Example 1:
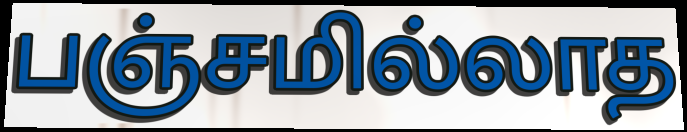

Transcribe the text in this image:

பஞ்சமில்லாத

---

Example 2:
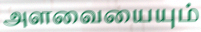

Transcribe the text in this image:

அளவையையும்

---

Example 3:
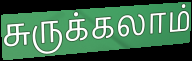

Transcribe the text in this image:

சுருக்கலாம்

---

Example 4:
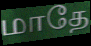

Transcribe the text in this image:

மாதே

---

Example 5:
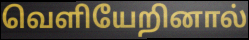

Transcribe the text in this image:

வெளியேறினால்